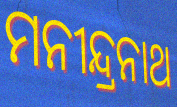
ମନୀନ୍ଦ୍ରନାଥ